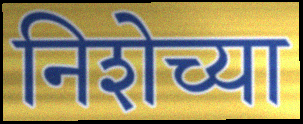
निशेच्या